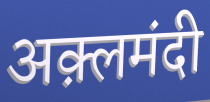
अक़्लमंदी